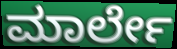
ಮಾರ್ಲೇ